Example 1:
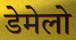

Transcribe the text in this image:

डेमेलो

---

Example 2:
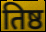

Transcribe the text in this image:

तिष्ठ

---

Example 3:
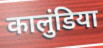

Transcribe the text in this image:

कालुंडिया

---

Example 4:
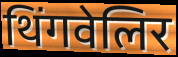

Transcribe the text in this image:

थिंगवेलिर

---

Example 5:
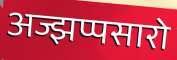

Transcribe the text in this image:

अज्झप्पसारो